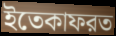
ইতেকাফরত